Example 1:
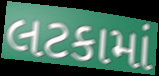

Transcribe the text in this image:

લટકામાં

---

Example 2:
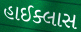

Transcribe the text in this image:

હાઈક્લાસ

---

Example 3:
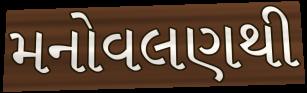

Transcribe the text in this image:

મનોવલણથી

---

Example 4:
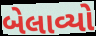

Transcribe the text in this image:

બેલાવ્યો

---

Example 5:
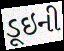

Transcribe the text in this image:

ડૂઇની